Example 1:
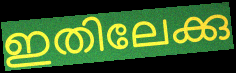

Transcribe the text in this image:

ഇതിലേക്കു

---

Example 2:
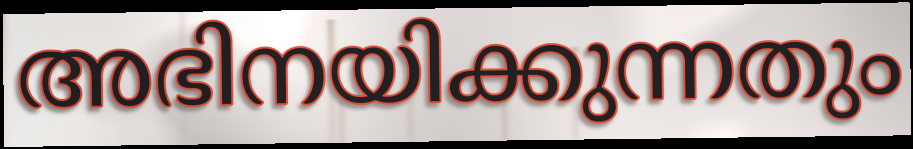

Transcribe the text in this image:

അഭിനയിക്കുന്നതും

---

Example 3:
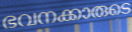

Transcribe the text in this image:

ഭവനക്കാരുടെ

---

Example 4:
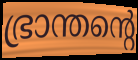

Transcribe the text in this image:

ഭ്രാന്തന്റെ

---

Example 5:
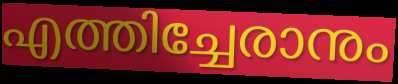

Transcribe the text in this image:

എത്തിച്ചേരാനും